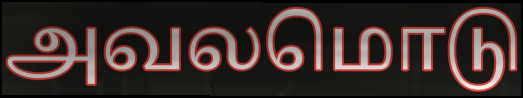
அவலமொடு